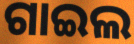
ଗାଇଲ